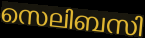
സെലിബസി